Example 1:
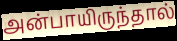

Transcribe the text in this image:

அன்பாயிருந்தால்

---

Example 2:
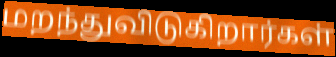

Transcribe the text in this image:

மறந்துவிடுகிறார்கள்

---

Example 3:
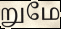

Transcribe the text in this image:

றுமே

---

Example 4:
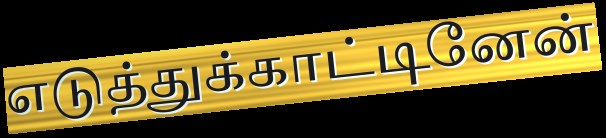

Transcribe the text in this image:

எடுத்துக்காட்டினேன்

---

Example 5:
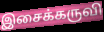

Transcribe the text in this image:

இசைக்கருவி